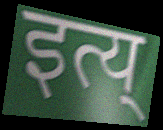
इत्य्